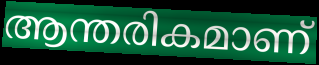
ആന്തരികമാണ്